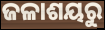
ଜଳାଶୟରୁ